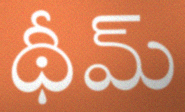
థీమ్